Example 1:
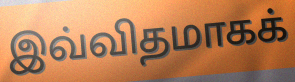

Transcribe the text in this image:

இவ்விதமாகக்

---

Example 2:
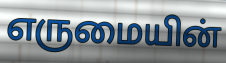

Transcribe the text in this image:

எருமையின்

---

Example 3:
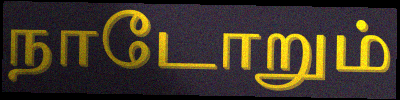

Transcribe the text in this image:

நாடோறும்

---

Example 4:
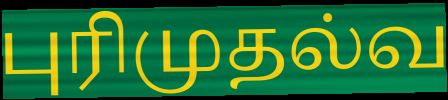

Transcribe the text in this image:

புரிமுதல்வ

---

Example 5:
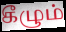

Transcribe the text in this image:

கீழும்